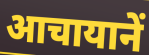
आचायानें